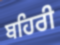
ਬਹਿਰੀ